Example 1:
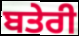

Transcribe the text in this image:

ਬਤੇਰੀ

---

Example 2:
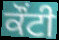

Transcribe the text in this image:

ਕੌਂਟੀ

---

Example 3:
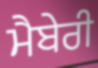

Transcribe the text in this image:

ਮੈਬੇਰੀ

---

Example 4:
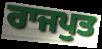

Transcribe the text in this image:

ਰਾਜਪੁਤ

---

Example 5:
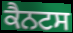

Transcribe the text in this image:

ਕੈਨਟਸ